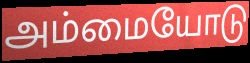
அம்மையோடு